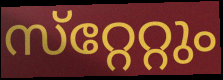
സ്‌റ്റേറ്റും